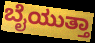
ಬೈಯುತ್ತಾ